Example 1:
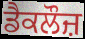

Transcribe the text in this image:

ਡੈਕਲੌਜ਼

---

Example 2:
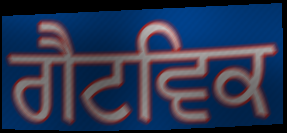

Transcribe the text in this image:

ਗੈਟਵਿਕ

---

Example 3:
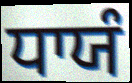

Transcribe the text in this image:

ਧਾਯੰ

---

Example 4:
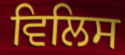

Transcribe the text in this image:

ਵਿਲਿਸ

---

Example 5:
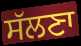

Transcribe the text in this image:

ਸੱਲਣਾ